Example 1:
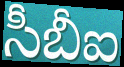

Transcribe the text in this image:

సీబీఐ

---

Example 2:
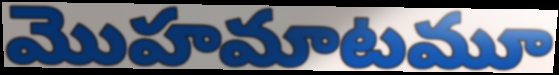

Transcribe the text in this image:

మొహమాటమూ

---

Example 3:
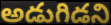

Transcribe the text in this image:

అడుగిడని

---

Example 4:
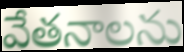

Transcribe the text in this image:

వేతనాలను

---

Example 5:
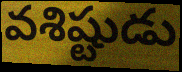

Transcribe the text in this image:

వశిష్టుడు